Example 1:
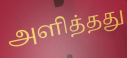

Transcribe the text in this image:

அளித்தது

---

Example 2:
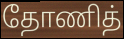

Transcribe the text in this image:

தோணித்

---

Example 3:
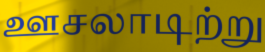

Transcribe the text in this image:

ஊசலாடிற்று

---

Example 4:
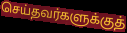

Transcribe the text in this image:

செய்தவர்களுக்குத்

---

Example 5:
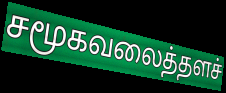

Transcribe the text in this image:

சமூகவலைத்தளச்